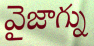
వైజాగ్ను